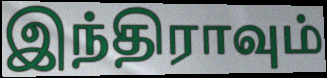
இந்திராவும்